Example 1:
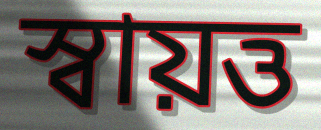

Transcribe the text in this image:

স্বায়ত্ত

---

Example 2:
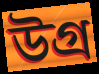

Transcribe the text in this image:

উগ্ৰ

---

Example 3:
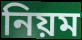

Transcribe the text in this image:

নিয়ম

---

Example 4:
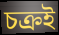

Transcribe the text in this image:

চক্ৰই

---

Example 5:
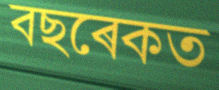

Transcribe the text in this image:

বছৰেকত